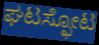
ಘಟಸ್ಫೋಟ